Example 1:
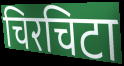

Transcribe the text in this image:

चिरचिटा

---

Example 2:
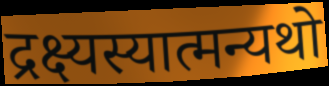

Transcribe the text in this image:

द्रक्ष्यस्यात्मन्यथो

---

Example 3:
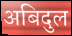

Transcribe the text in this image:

अबिदुल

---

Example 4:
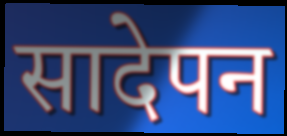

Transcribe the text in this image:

सादेपन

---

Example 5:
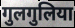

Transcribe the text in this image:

गुलगुलिया